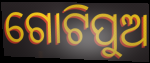
ଗୋଟିପୁଅ